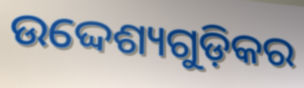
ଉଦ୍ଦେଶ୍ୟଗୁଡ଼ିକର